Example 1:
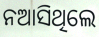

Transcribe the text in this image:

ନଆସିଥିଲେ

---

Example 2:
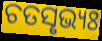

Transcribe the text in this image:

ଚତସୃଭ୍ୟଃ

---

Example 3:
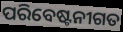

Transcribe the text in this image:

ପରିବେଷ୍ଟନୀଗତ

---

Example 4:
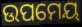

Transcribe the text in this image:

ଉପମେୟ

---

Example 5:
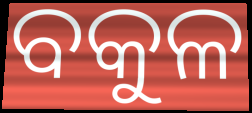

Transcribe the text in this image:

ବକୁଳ